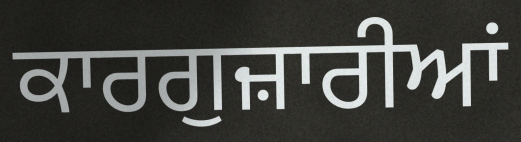
ਕਾਰਗੁਜ਼ਾਰੀਆਂ